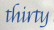
thirty